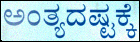
ಅಂತ್ಯದಷ್ಟಕ್ಕೆ